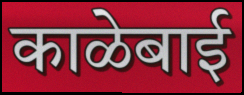
काळेबाई